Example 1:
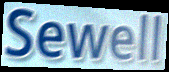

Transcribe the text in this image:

Sewell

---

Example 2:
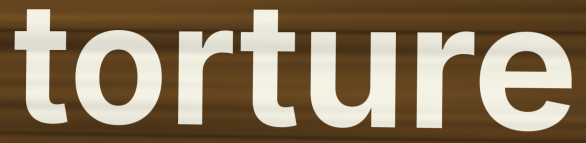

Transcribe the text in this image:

torture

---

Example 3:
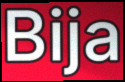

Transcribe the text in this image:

Bija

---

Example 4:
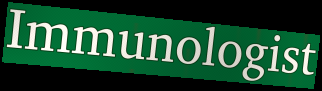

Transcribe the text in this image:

Immunologist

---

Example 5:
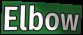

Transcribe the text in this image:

Elbow